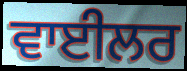
ਵਾਈਲਰ